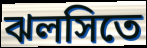
ঝলসিতে